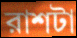
রাশটা